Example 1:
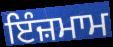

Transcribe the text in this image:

ਇੰਜ਼ਮਾਮ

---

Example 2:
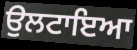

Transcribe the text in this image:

ਉਲਟਾਇਆ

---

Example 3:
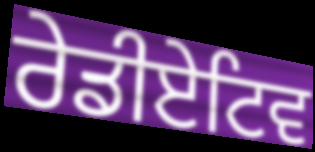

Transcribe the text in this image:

ਰੇਡੀਏਟਿਵ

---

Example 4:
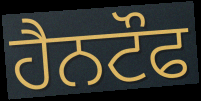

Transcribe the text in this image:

ਹੈਨਟੌਫ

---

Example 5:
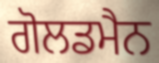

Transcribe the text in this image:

ਗੋਲਡਮੈਨ